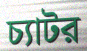
চ্যাটর